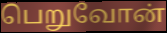
பெறுவோன்